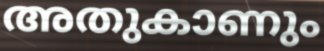
അതുകാണും